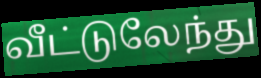
வீட்டுலேந்து